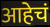
आहेचं